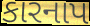
કારનાપ